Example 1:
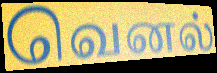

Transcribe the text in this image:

வெனல்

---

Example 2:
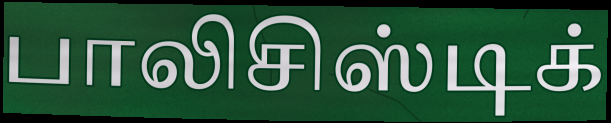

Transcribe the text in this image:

பாலிசிஸ்டிக்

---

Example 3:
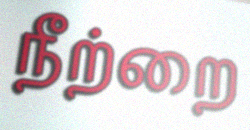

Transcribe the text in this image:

நீற்றை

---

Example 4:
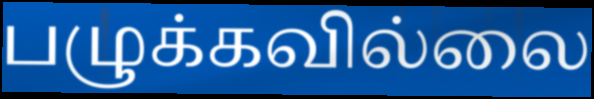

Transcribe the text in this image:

பழுக்கவில்லை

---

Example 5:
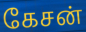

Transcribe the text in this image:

கேசன்